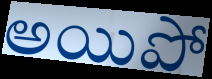
అయిపో